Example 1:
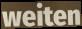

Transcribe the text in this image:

weiten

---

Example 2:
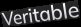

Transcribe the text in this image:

Veritable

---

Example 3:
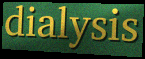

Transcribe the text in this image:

dialysis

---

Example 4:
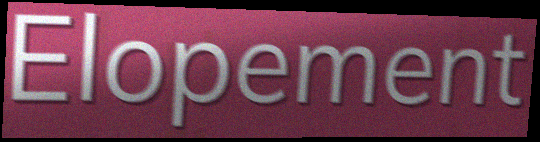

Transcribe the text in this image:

Elopement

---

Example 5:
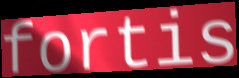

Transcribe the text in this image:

fortis